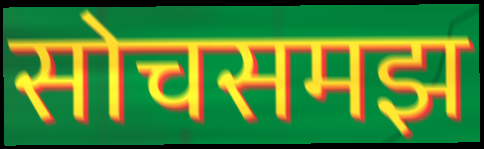
सोचसमझ